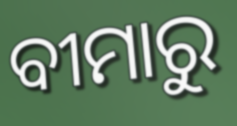
ବୀମାରୁ